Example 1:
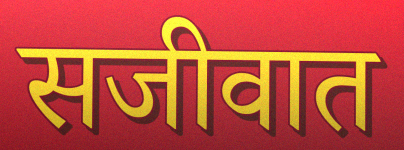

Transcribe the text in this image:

सजीवात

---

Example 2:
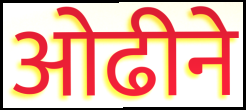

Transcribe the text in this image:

ओढीने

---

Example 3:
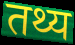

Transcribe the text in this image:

तथ्य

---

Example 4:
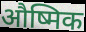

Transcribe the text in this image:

औष्मिक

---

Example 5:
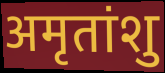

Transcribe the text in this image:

अमृतांशु